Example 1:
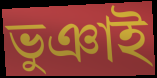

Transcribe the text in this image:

ভুঞাই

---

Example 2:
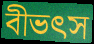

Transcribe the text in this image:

বীভৎস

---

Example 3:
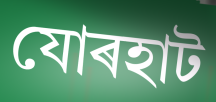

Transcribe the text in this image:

যোৰহাট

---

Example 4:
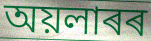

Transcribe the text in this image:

অয়লাৰৰ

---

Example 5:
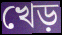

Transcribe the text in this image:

খেড়